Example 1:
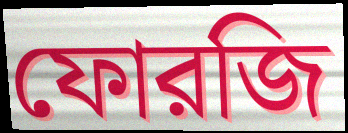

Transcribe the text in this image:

ফোরজি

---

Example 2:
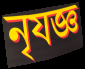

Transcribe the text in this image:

নৃযজ্ঞ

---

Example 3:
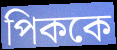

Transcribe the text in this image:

পিককে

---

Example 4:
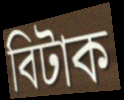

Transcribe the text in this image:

বিটাক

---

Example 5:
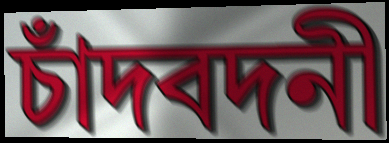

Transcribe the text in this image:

চাঁদবদনী